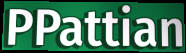
PPattian